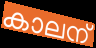
കാലന്